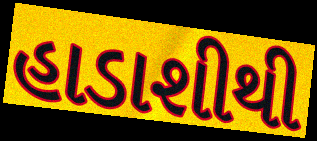
હાડાશીથી